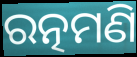
ରତ୍ନମଣି